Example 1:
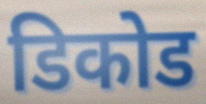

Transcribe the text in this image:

डिकोड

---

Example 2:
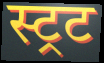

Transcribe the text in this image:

स्ट्रट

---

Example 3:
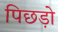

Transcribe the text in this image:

पिछड़ो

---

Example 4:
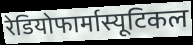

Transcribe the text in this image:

रेडियोफार्मास्यूटिकल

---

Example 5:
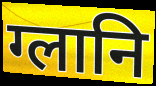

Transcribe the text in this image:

ग्लानि